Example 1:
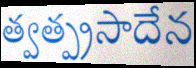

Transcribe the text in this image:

త్వత్ప్రసాదేన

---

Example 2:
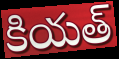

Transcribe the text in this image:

కియత్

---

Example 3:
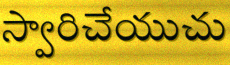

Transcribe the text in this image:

స్వారిచేయుచు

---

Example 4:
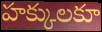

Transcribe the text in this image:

హక్కులకూ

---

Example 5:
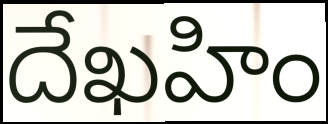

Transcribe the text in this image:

దేఖహిం